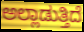
ಅಲ್ಲಾಡುತ್ತಿದೆ